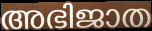
അഭിജാത